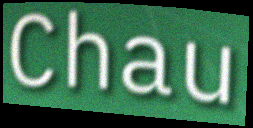
Chau